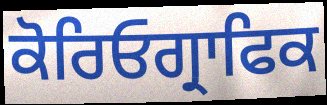
ਕੋਰਿਓਗ੍ਰਾਫਿਕ